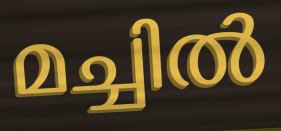
മച്ചിൽ